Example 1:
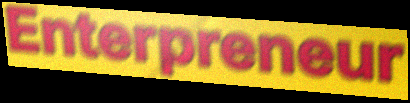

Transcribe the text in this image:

Enterpreneur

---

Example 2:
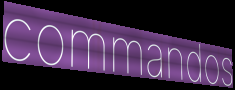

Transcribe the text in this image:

commandos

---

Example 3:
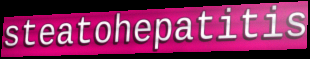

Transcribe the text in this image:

steatohepatitis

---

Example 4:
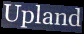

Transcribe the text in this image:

Upland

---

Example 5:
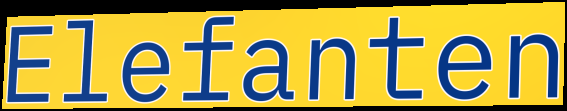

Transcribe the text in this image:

Elefanten